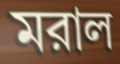
মরাল